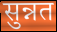
सुन्नत